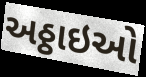
અઠ્ઠાઇઓ